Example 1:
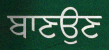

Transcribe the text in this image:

ਬਾਣਉਣ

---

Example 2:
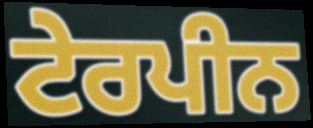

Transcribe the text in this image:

ਟੇਰਪੀਨ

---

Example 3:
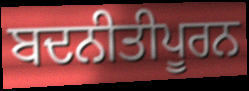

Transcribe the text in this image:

ਬਦਨੀਤੀਪੂਰਨ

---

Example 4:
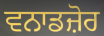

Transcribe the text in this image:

ਵਨਾਡਜ਼ੋਰ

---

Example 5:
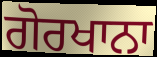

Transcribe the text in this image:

ਗੋਰਖਾਨਾ